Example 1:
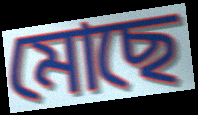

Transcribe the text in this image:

মোছে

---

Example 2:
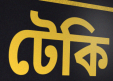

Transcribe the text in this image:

টেকি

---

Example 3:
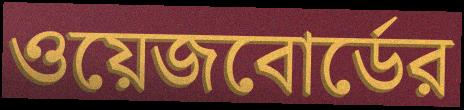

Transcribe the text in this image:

ওয়েজবোর্ডের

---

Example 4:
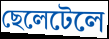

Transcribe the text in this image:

ছেলেটেলে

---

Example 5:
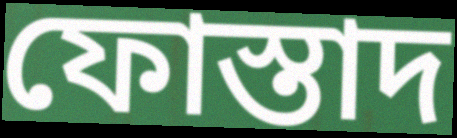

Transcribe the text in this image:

ফোস্তাদ